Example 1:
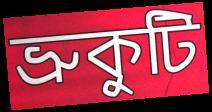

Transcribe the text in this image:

ভ্ৰুকুটি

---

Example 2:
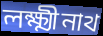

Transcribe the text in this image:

লক্ষ্মীনাথ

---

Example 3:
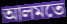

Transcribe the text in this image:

আলমতে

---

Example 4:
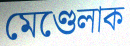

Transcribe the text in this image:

মেণ্ডেলাক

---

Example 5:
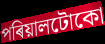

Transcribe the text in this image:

পৰিয়ালটোকো